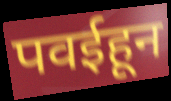
पवईहून